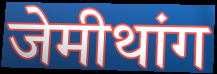
जेमीथांग